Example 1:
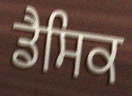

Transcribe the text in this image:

ਡੈਸਿਕ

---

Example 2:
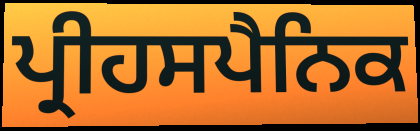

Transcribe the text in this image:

ਪ੍ਰੀਹਸਪੈਨਿਕ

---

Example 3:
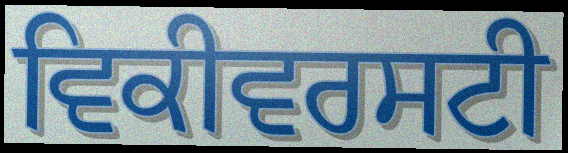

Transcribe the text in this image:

ਵਿਕੀਵਰਸਟੀ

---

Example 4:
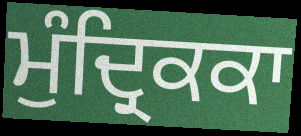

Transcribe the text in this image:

ਮੁੰਦ੍ਰਿਕਕਾ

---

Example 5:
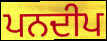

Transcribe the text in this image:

ਪਨਦੀਪ